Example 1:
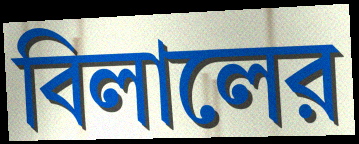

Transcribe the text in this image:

বিলালের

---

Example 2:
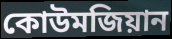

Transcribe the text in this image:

কোউমজিয়ান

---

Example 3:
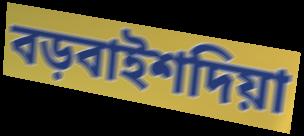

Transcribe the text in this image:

বড়বাইশদিয়া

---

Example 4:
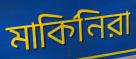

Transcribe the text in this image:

মার্কিনিরা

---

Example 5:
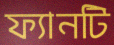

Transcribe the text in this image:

ফ্যানটি